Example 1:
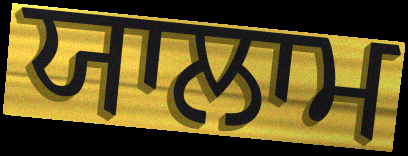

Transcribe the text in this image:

ਯਾਲਾਮ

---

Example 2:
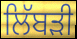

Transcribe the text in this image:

ਲਿੱਬੜੀ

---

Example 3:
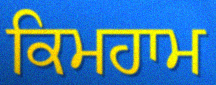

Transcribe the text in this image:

ਕਿਮਹਾਮ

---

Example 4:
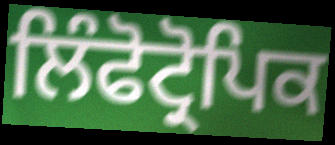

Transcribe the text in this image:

ਲਿੰਫੋਟ੍ਰੋਪਿਕ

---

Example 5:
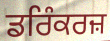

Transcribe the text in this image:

ਡਰਿੰਕਰਜ਼